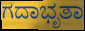
ಗದಾಭೃತಾ